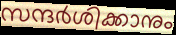
സന്ദർശിക്കാനും